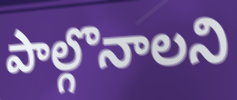
పాల్గొనాలని